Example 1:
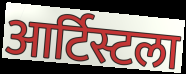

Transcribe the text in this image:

आर्टिस्टला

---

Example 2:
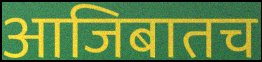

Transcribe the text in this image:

आजिबातच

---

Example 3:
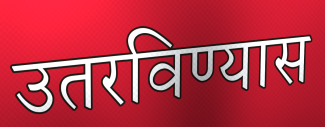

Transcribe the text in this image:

उतरविण्यास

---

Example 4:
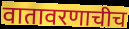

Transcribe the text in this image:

वातावरणाचीच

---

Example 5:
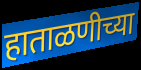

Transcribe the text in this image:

हाताळणीच्या